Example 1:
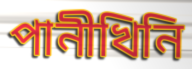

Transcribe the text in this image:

পানীখিনি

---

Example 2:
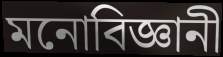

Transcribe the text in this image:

মনোবিজ্ঞানী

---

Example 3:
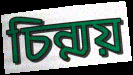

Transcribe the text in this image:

চিন্ময়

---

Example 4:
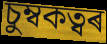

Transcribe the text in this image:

চুম্বকত্বৰ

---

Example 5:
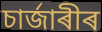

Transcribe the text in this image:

চাৰ্জাৰীৰ